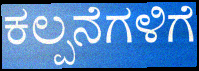
ಕಲ್ಪನೆಗಳಿಗೆ